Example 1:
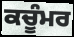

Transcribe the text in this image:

ਕਚੂੰਮਰ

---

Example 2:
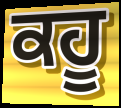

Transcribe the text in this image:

ਕਹੂ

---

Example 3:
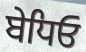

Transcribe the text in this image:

ਬੇਧਿਓ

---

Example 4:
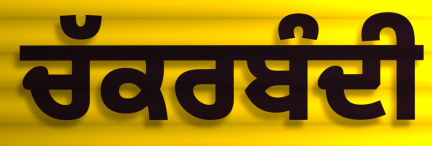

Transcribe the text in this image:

ਚੱਕਰਬੰਦੀ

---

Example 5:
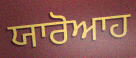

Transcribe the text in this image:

ਯਾਰੋਆਹ